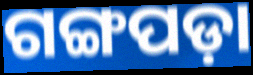
ଗଙ୍ଗପଡ଼ା